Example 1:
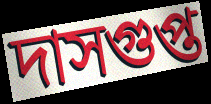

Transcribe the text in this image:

দাসগুপ্ত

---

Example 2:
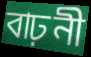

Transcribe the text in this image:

বাঢ়নী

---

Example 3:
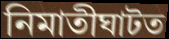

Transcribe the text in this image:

নিমাতীঘাটত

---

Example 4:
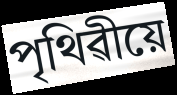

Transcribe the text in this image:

পৃথিৱীয়ে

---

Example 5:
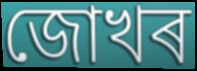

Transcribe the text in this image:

জোখৰ